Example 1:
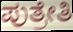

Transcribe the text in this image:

ಪುತ್ರೇತಿ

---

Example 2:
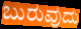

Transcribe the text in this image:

ಬುರುವುದು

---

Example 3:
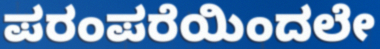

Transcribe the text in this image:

ಪರಂಪರೆಯಿಂದಲೇ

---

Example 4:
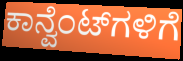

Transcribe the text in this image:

ಕಾನ್ವೆಂಟ್‌ಗಳಿಗೆ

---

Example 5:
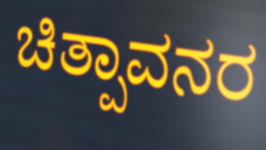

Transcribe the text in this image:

ಚಿತ್ಪಾವನರ